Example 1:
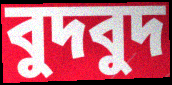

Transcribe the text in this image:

বুদবুদ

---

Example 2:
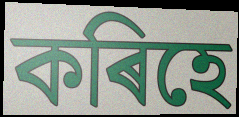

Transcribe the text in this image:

কৰিহে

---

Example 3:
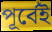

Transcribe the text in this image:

পূৰ্বেই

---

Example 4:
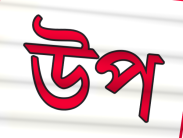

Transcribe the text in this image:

উপ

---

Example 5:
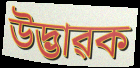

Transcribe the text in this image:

উদ্ভাৱক